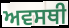
ਅਵਸਥੀ